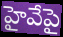
హైవేపై